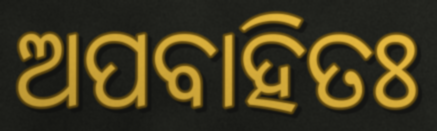
ଅପବାହିତଃ